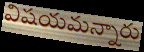
విషయమన్నారు